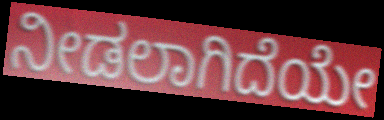
ನೀಡಲಾಗಿದೆಯೇ